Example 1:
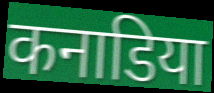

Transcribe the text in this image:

कनाडिया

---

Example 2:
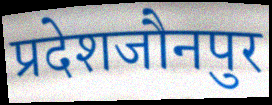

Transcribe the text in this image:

प्रदेशजौनपुर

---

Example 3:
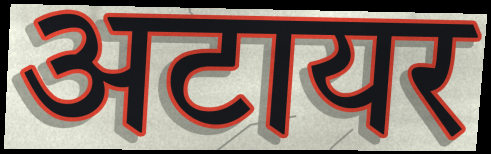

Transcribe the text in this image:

अटायर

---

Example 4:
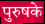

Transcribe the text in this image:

पुरुषके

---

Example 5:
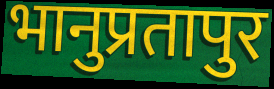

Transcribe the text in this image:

भानुप्रतापुर